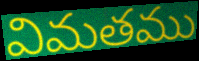
విమతము